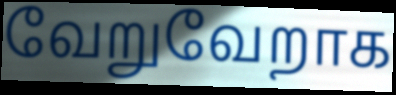
வேறுவேறாக